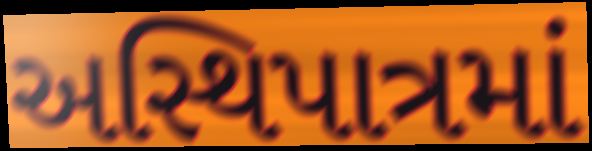
અસ્થિપાત્રમાં